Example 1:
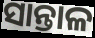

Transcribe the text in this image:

ସାନ୍ତାଳ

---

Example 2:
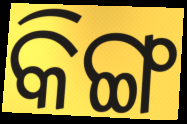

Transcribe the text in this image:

କିଙ୍ଗ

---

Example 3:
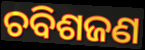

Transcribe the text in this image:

ଚବିଶଜଣ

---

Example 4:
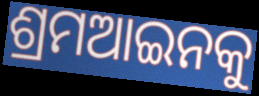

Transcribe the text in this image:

ଶ୍ରମଆଇନକୁ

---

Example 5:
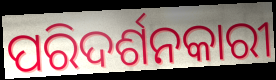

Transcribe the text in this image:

ପରିଦର୍ଶନକାରୀ